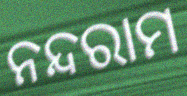
ନନ୍ଦରାମ